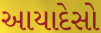
આયાદેસો